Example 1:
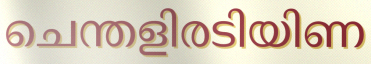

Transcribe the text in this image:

ചെന്തളിരടിയിണ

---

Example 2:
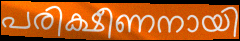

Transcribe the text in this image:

പരിക്ഷീണനായി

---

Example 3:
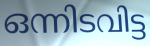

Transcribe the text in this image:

ഒന്നിടവിട്ട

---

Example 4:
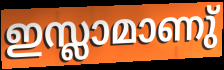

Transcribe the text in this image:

ഇസ്ലാമാണു്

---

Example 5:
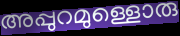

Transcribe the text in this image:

അപ്പുറമുള്ളൊരു